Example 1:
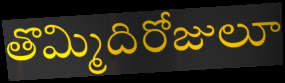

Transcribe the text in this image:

తొమ్మిదిరోజులూ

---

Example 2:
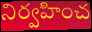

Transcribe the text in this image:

నిర్వహించ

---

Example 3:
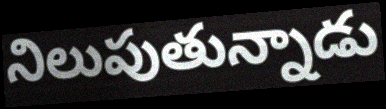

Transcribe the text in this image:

నిలుపుతున్నాడు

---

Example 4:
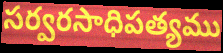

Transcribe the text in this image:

సర్వరసాధిపత్యము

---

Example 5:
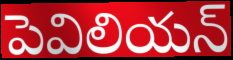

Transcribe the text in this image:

పెవిలియన్